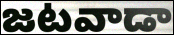
జటవాడా